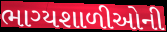
ભાગ્યશાળીઓની